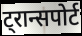
ट्रान्सपोर्ट